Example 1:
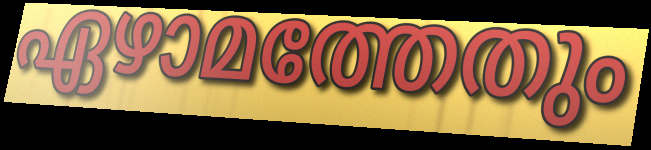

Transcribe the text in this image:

ഏഴാമത്തേതും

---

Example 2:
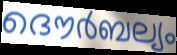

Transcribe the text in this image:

ദൌർബല്യം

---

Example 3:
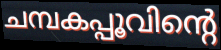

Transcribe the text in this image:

ചമ്പകപ്പൂവിന്റെ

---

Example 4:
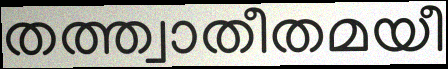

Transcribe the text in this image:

തത്ത്വാതീതമയീ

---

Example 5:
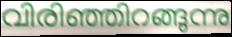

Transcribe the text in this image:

വിരിഞ്ഞിറങ്ങുന്നു